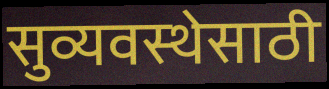
सुव्यवस्थेसाठी